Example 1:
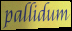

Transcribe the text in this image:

pallidum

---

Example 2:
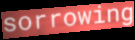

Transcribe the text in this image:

sorrowing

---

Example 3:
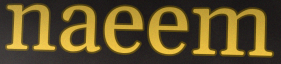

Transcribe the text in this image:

naeem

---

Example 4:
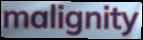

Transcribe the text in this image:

malignity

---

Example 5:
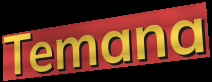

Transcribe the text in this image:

Temana